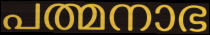
പത്മനാഭ